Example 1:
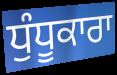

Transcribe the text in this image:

ਧੁੰਧੂਕਾਰਾ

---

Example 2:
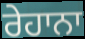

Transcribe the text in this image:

ਰੇਹਾਨਾ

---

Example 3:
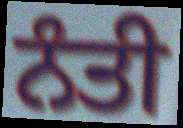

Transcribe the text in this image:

ਨੰਤੀ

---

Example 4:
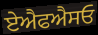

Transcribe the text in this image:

ਏਐਫਐਸਓ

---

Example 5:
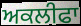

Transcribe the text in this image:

ਅਕਲੀਫਾ